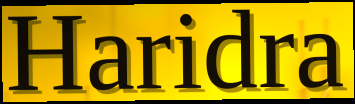
Haridra